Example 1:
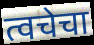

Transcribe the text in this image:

त्वचेचा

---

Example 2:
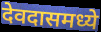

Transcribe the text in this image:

देवदासमध्ये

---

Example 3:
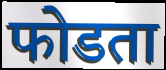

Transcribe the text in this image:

फोडता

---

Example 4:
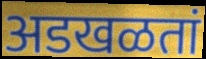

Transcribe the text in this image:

अडखळतां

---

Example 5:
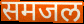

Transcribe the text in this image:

समजल